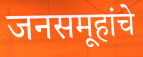
जनसमूहांचे